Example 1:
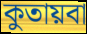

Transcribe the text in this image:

কুতায়বা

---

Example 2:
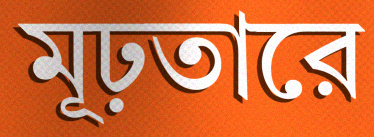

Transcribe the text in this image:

মূঢ়তারে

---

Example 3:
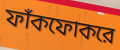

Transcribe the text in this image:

ফাঁকফোকরে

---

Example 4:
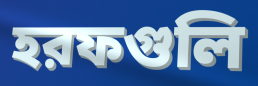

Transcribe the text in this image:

হরফগুলি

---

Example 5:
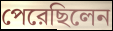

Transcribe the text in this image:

পেরেছিলেন